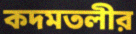
কদমতলীর